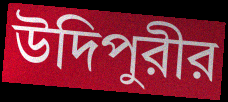
উদিপুরীর